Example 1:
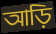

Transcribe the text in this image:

আড়ি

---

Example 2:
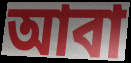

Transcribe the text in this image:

আবা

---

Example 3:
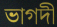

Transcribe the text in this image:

ভাগদী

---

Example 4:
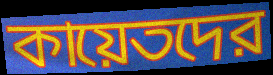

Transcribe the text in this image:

কায়েতদের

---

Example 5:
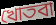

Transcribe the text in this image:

খোতবা